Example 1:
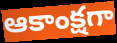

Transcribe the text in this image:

ఆకాంక్షగా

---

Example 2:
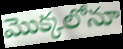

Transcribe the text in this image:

మొక్కలోనూ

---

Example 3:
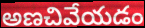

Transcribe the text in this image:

అణచివేయడం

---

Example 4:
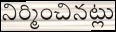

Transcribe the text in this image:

నిర్మించినట్లు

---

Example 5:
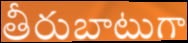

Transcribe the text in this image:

తీరుబాటుగా